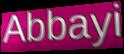
Abbayi